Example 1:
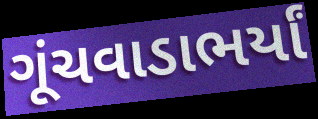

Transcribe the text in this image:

ગૂંચવાડાભર્યાં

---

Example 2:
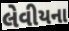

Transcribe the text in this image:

લેવીયના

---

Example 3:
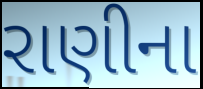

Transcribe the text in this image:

રાણીના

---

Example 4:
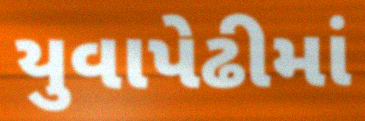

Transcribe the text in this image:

યુવાપેઢીમાં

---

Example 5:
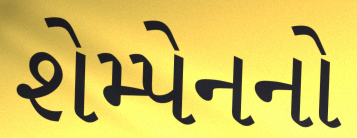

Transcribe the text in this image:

શેમ્પેનનો